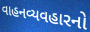
વાહનવ્યવહારનો